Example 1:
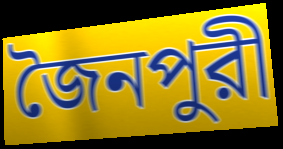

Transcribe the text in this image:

জৈনপুরী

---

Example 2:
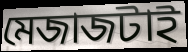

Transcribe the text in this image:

মেজাজটাই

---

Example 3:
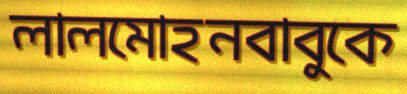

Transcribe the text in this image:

লালমোহনবাবুকে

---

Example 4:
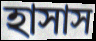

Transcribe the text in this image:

হাসাস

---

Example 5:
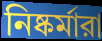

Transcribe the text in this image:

নিষ্কর্মারা